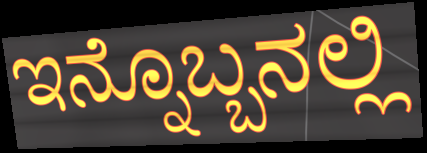
ಇನ್ನೊಬ್ಬನಲ್ಲಿ